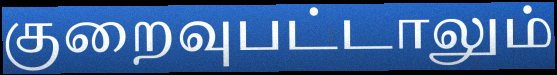
குறைவுபட்டாலும்